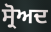
ਸ੍ਰੋਅਦ